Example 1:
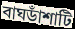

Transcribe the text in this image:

বাঘডাঁশাটি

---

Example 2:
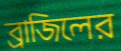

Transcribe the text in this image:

ব্রাজিলের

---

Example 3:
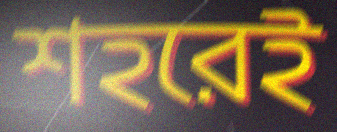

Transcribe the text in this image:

শহরেই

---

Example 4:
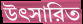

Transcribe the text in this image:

উৎসারিত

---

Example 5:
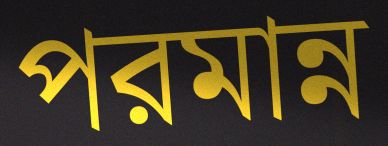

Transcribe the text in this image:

পরমান্ন